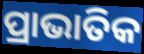
ପ୍ରାଭାତିକ